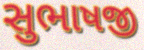
સુભાષજી